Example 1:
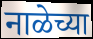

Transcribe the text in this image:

नाळेच्या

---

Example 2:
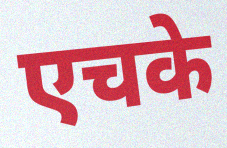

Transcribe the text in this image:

एचके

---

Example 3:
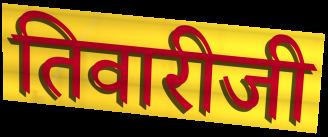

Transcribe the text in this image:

तिवारीजी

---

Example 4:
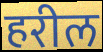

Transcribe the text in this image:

हरील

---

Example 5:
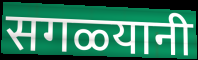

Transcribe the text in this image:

सगळ्यानी